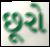
છૂરો